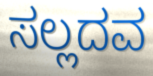
ಸಲ್ಲದವ